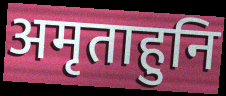
अमृताहुनि